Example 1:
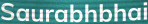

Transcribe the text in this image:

Saurabhbhai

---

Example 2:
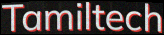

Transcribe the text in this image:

Tamiltech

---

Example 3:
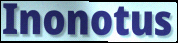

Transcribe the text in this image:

Inonotus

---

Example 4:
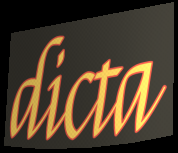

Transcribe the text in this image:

dicta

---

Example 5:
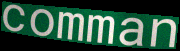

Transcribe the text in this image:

comman